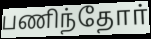
பணிந்தோர்